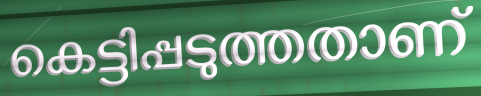
കെട്ടിപ്പടുത്തതാണ്